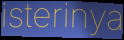
isterinya